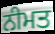
ਨੀਮਤ